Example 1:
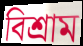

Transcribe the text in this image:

বিশ্রাম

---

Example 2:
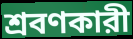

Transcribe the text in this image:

শ্রবণকারী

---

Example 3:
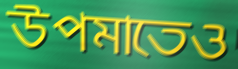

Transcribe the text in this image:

উপমাতেও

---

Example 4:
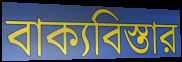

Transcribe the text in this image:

বাক্যবিস্তার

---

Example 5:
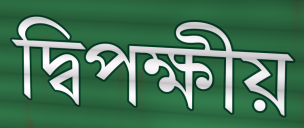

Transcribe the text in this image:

দ্বিপক্ষীয়